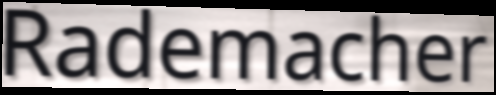
Rademacher